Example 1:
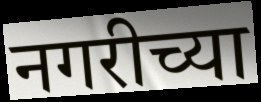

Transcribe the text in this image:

नगरीच्या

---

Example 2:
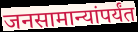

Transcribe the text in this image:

जनसामान्यांपर्यंत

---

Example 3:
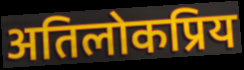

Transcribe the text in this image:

अतिलोकप्रिय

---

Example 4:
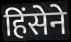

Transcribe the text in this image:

हिंसेने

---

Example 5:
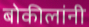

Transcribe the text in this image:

बोकीलांनी